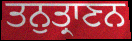
ਤਨੁਤ੍ਰਾਣਨ